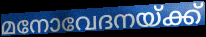
മനോവേദനയ്ക്ക്